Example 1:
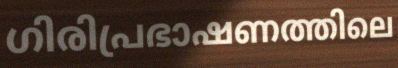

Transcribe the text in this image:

ഗിരിപ്രഭാഷണത്തിലെ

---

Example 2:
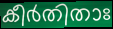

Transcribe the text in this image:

കീർതിതാഃ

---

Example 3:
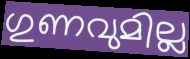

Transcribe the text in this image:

ഗുണവുമില്ല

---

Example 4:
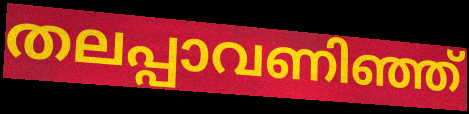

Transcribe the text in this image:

തലപ്പാവണിഞ്ഞ്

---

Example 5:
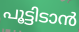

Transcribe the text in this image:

പൂട്ടിടാൻ